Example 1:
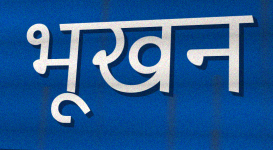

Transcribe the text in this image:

भूखन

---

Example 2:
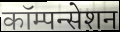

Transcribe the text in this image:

कॉम्पन्सेशन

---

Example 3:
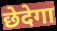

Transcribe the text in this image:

छेदेगा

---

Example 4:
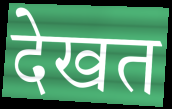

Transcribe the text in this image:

देखत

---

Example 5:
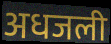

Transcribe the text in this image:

अधजली